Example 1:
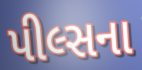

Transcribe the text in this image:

પીલ્સના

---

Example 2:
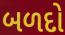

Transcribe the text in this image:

બળદો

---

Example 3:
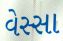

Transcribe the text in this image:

વેસ્સા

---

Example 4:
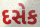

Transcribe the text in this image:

દસેક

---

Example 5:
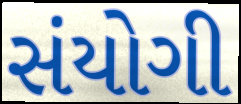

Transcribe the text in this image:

સંયોગી